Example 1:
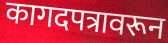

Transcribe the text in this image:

कागदपत्रावरून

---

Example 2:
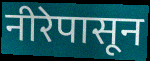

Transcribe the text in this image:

नीरेपासून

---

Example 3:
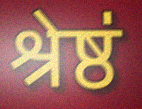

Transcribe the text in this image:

श्रेष्ठं॑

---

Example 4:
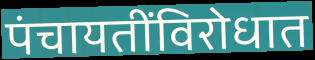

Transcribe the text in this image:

पंचायतींविरोधात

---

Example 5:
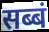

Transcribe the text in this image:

सब्बं